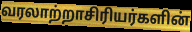
வரலாற்றாசிரியர்களின்